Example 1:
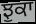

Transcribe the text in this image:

ਝੁਕਾ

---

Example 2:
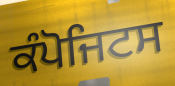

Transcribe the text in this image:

ਕੰਪੋਜਿਟਸ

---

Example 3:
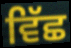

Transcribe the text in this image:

ਵਿੱਛ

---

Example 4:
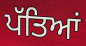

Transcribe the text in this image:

ਪੱਤਿਆਂ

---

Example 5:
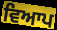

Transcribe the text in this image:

ਵਿਆਪ